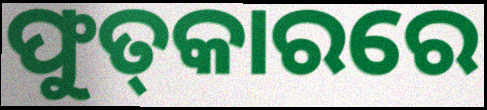
ଫୁତ୍‌କାରରେ